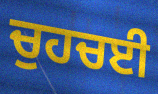
ਚੁਹਚਈ